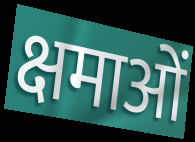
क्षमाओं